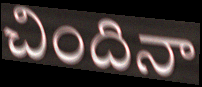
చిందినా